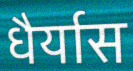
धैर्यास